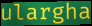
ulargha